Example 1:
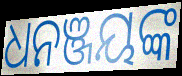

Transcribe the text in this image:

ଧନଞ୍ଜୟଙ୍କ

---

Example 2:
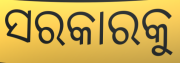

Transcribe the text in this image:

ସରକାରକୁ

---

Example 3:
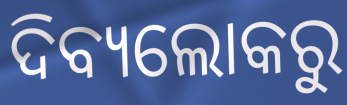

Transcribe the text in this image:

ଦିବ୍ୟଲୋକରୁ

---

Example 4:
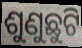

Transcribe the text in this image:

ଶୁଣୁଛୁଟି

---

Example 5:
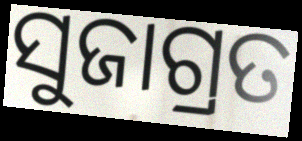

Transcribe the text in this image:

ସୁଜାଗ୍ରତ